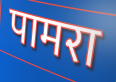
पामरा